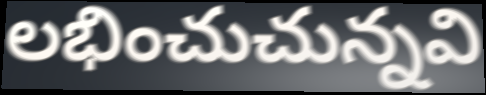
లభించుచున్నవి